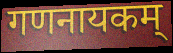
गणनायकम्